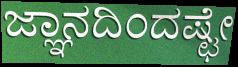
ಜ್ಞಾನದಿಂದಷ್ಟೇ